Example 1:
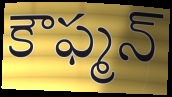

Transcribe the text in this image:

కౌఫ్మన్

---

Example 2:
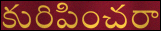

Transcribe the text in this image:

కురిపించరా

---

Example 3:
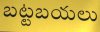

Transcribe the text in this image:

బట్టబయలు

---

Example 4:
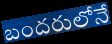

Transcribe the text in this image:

బందరులోనే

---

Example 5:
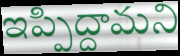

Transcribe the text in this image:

ఇప్పిద్దామని